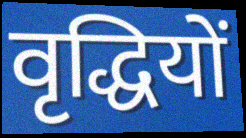
वृद्धियों